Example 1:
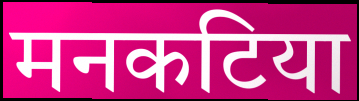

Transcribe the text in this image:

मनकटिया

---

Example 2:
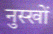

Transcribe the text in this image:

नुस्‍खों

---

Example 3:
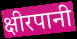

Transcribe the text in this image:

क्षीरपानी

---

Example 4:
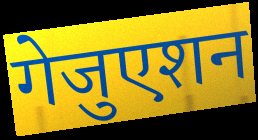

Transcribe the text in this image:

गेजुएशन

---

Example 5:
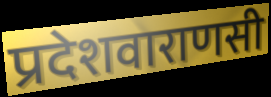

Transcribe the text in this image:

प्रदेशवाराणसी